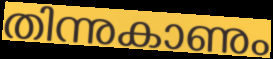
തിന്നുകാണും